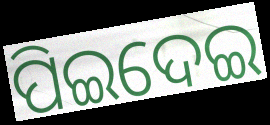
ପିଇଦେଇ